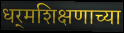
धर्मशिक्षणाच्या